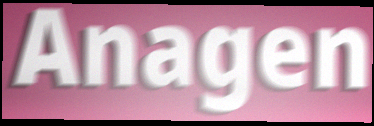
Anagen